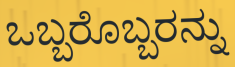
ಒಬ್ಬರೊಬ್ಬರನ್ನು